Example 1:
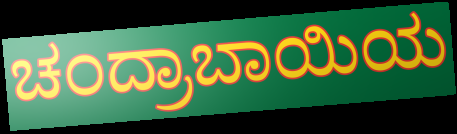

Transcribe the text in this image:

ಚಂದ್ರಾಬಾಯಿಯ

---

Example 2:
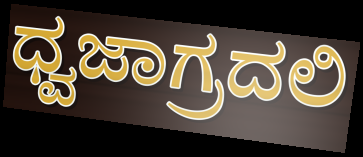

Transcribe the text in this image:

ಧ್ವಜಾಗ್ರದಲಿ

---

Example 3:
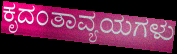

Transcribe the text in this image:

ಕೃದಂತಾವ್ಯಯಗಳು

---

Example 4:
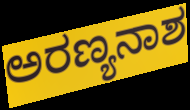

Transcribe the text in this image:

ಅರಣ್ಯನಾಶ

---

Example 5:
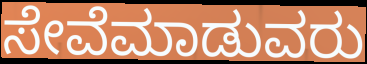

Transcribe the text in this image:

ಸೇವೆಮಾಡುವರು